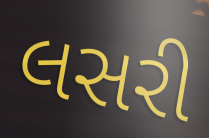
લસરી